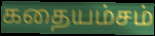
கதையம்சம்